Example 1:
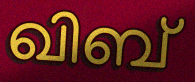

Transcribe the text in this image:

ഖിബ്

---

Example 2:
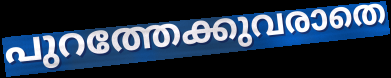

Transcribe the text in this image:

പുറത്തേക്കുവരാതെ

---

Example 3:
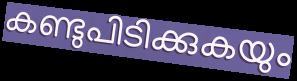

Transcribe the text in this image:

കണ്ടുപിടിക്കുകയും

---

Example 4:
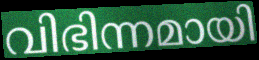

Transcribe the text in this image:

വിഭിന്നമായി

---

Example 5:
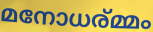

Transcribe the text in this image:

മനോധര്മ്മം